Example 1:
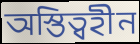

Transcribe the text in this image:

অস্তিত্বহীন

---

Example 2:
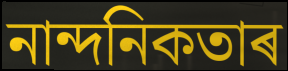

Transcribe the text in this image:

নান্দনিকতাৰ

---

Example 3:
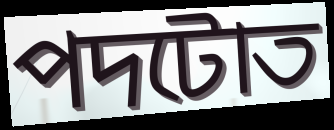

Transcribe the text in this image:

পদটোত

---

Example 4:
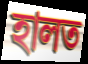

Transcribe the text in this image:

হালত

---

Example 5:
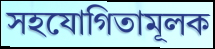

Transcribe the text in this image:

সহযোগিতামূলক